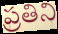
ప్రతిని